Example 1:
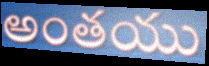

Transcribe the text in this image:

అంతయు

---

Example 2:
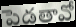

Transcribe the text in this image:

పెడతావో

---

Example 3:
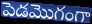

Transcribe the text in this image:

పెడమొగంగా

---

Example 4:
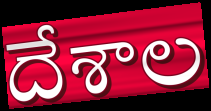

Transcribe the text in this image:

దేశాల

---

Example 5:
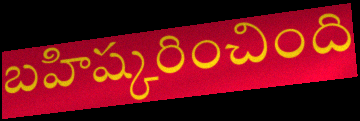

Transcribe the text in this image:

బహిష్కరించింది